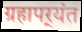
ग्रहापर्यंत